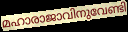
മഹാരാജാവിനുവേണ്ടി